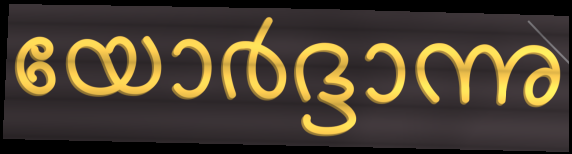
യോർദ്ദാന്നു